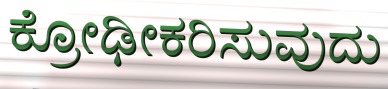
ಕ್ರೋಢೀಕರಿಸುವುದು